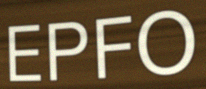
EPFO